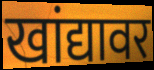
खांद्यावर